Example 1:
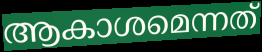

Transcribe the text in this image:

ആകാശമെന്നത്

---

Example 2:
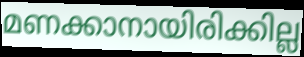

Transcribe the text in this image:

മണക്കാനായിരിക്കില്ല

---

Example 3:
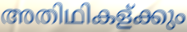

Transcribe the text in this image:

അതിഥികള്ക്കും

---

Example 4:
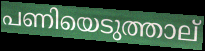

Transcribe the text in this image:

പണിയെടുത്താല്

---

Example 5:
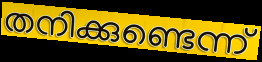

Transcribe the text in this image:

തനിക്കുണ്ടെന്ന്